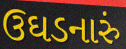
ઉઘડનારું